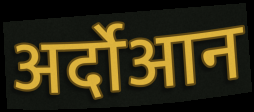
अर्दोआन